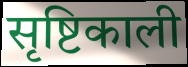
सृष्टिकाली